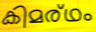
കിമര്ഥം